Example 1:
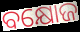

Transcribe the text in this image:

ବକ୍ଷୋଜ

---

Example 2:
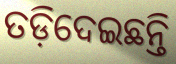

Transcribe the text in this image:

ତଡ଼ିଦେଇଛନ୍ତି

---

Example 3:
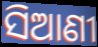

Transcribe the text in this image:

ସିଆଣୀ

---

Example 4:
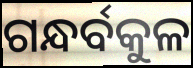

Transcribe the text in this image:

ଗନ୍ଧର୍ବକୁଳ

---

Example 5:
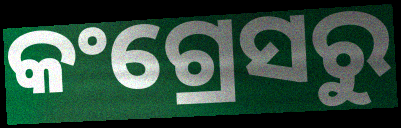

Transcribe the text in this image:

କଂଗ୍ରେସରୁ